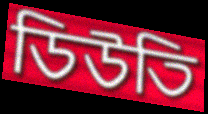
ডিউতি